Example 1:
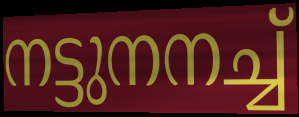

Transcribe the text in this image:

നട്ടുനനച്ച്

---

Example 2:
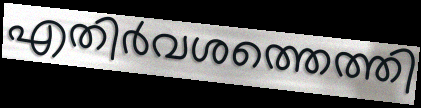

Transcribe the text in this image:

എതിർവശത്തെത്തി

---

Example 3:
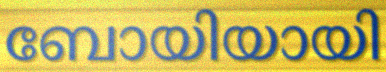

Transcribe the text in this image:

ബോയിയായി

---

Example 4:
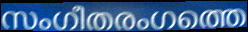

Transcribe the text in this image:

സംഗീതരംഗത്തെ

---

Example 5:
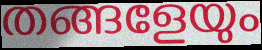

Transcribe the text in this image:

തങ്ങളേയും